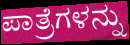
ಪಾತ್ರೆಗಳನ್ನು